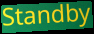
Standby